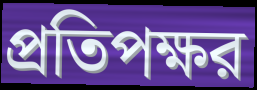
প্রতিপক্ষর